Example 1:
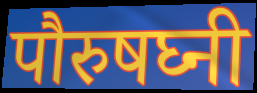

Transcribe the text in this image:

पौरुषघ्नी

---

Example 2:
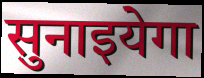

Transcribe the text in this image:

सुनाइयेगा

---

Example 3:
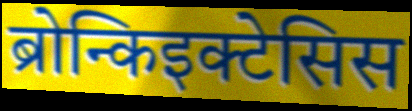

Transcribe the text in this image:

ब्रोन्किइक्टेसिस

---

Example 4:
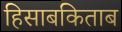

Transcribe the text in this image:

हिसाबकिताब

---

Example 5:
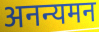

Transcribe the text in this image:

अनन्यमन